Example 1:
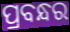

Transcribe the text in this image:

ପ୍ରବନ୍ଧର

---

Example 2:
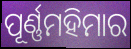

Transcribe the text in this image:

ପୂର୍ଣ୍ଣମହିମାର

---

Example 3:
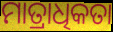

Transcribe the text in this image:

ମାତ୍ରାଧିକତା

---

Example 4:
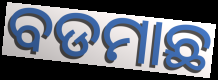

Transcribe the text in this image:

ବଡମାଛ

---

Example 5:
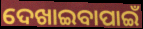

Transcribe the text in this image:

ଦେଖାଇବାପାଇଁ